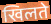
खिलते